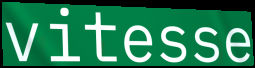
vitesse